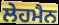
ਲੇਹਮੈਨ